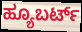
ಹ್ಯೂಬರ್ಟ್